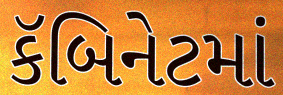
કૅબિનેટમાં